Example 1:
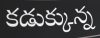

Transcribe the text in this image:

కడుక్కున్న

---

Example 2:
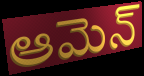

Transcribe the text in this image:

ఆమెన్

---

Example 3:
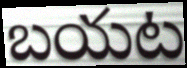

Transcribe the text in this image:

బయట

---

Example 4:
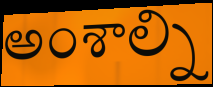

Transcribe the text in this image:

అంశాల్ని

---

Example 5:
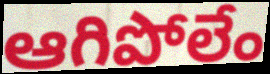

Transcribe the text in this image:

ఆగిపోలేం